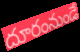
దూరంనుండే